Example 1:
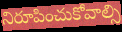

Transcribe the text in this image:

నిరూపించుకోవాల్సి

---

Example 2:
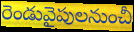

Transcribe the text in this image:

రెండువైపులనుంచీ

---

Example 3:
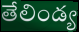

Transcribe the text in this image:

తేలిండ్య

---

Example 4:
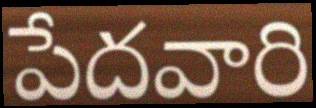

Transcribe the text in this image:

పేదవారి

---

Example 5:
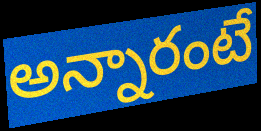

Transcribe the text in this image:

అన్నారంటే